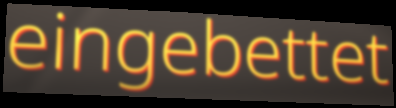
eingebettet